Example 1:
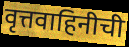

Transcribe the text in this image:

वृत्तवाहिनीची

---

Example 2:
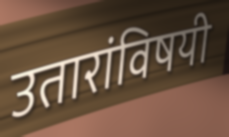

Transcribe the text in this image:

उतारांविषयी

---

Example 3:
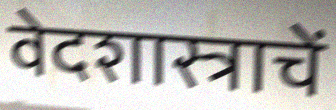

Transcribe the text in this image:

वेदशास्त्राचें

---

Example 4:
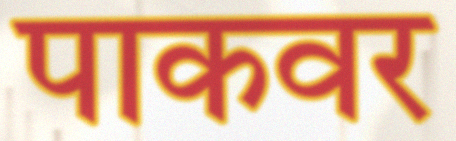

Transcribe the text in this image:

पाकवर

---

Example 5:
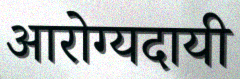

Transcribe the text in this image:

आरोग्यदायी